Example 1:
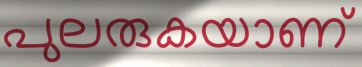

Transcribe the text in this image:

പുലരുകയാണ്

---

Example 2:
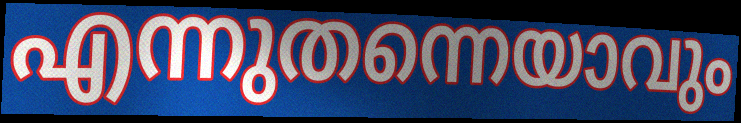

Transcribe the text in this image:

എന്നുതന്നെയാവും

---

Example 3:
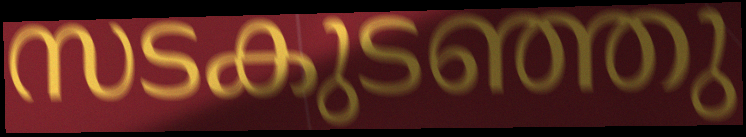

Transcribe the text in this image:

സടകുടഞ്ഞു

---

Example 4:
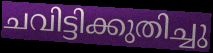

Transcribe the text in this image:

ചവിട്ടിക്കുതിച്ചു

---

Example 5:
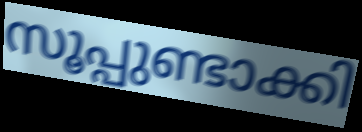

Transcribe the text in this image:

സൂപ്പുണ്ടാക്കി